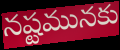
నష్టమునకు